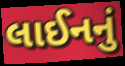
લાઈનનું